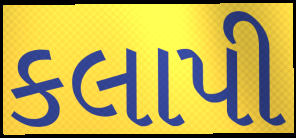
કલાપી